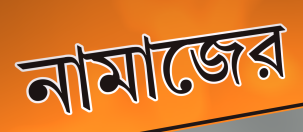
নামাজের